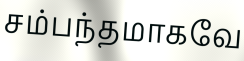
சம்பந்தமாகவே